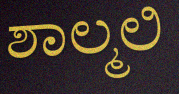
ಶಾಲ್ಮಲಿ